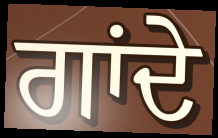
ਗਾਂਦੇ